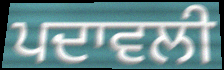
ਪਦਾਵਲੀ